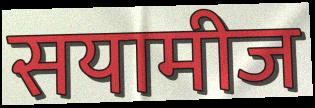
सयामीज